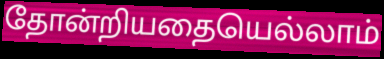
தோன்றியதையெல்லாம்